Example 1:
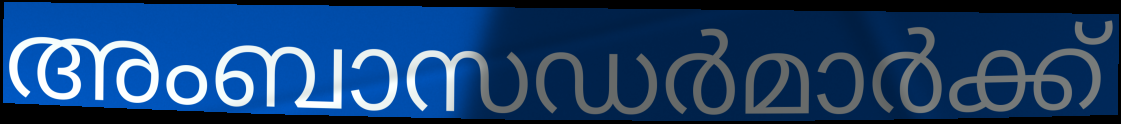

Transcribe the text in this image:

അംബാസഡർമാർക്ക്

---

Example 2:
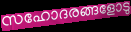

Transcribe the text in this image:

സഹോദരങ്ങളോടു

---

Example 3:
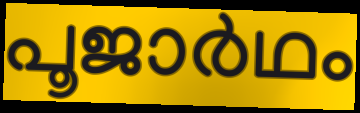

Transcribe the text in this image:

പൂജാർഥം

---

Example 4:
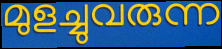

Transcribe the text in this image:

മുളച്ചുവരുന്ന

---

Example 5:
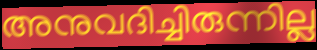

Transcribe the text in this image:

അനുവദിച്ചിരുന്നില്ല